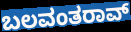
ಬಲವಂತರಾವ್